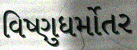
વિષ્ણુધર્મોતર